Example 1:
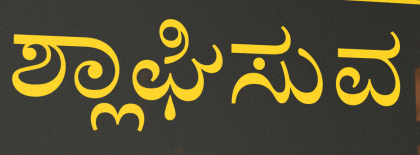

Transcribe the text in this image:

ಶ್ಲಾಘಿಸುವ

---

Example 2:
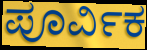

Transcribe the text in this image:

ಪೂರ್ವಿಕ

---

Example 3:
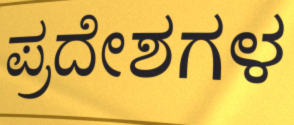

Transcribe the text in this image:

ಪ್ರದೇಶಗಳ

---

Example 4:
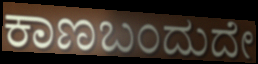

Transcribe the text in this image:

ಕಾಣಬಂದುದೇ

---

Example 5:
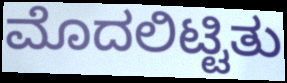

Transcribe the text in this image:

ಮೊದಲಿಟ್ಟಿತು